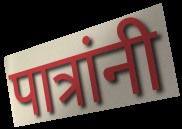
पात्रांनी